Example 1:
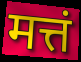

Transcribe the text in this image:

मत्तं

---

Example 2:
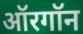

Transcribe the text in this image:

ऑरगॉन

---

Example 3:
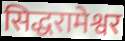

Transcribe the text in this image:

सिद्धरामेश्वर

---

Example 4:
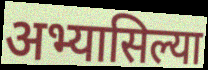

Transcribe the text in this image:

अभ्यासिल्या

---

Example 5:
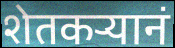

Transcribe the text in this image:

शेतकर्‍यानं